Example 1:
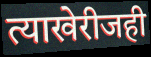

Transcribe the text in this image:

त्याखेरीजही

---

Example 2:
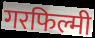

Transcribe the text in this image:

गरफिल्मी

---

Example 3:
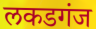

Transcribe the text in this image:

लकडगंज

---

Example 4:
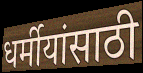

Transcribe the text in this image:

धर्मीयांसाठी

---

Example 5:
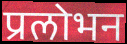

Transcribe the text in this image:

प्रलोभन